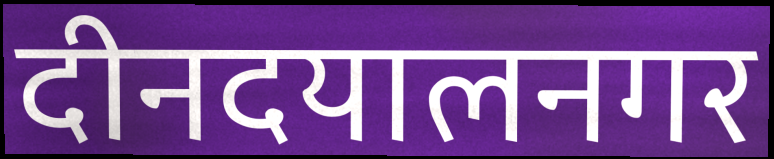
दीनदयालनगर